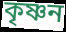
কৃষ্ণন